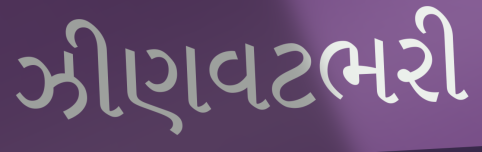
ઝીણવટભરી